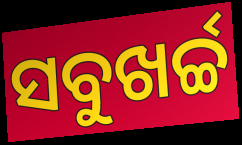
ସବୁଖର୍ଚ୍ଚ